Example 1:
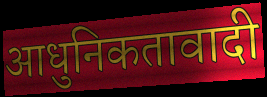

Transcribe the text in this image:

आधुनिकतावादी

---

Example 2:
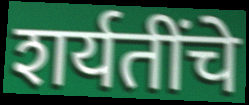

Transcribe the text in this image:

शर्यतींचे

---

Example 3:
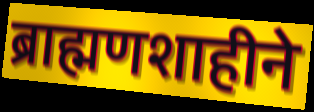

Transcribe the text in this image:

ब्राह्मणशाहीने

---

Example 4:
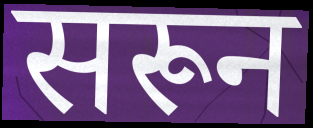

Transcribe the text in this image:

सरून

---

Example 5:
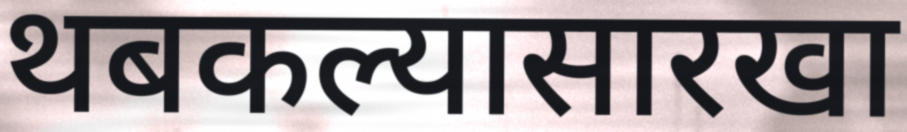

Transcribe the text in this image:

थबकल्यासारखा